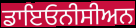
ਡਾਇਓਨੀਸੀਅਨ